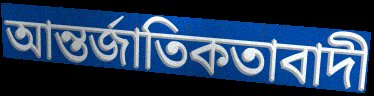
আন্তর্জাতিকতাবাদী